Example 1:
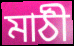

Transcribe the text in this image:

মাঠী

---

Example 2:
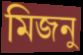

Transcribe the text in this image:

মিজনু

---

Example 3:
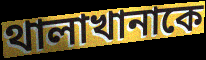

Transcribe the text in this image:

থালাখানাকে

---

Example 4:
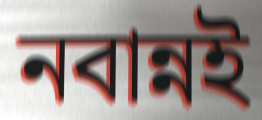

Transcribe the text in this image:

নবান্নই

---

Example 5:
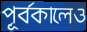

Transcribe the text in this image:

পূর্বকালেও